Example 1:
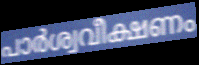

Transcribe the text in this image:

പാർശ്വവീക്ഷണം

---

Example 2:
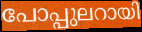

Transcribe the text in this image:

പോപ്പുലറായി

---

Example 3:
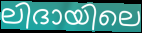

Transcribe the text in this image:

ലിദായിലെ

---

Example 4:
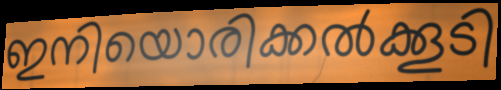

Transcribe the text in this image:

ഇനിയൊരിക്കൽക്കൂടി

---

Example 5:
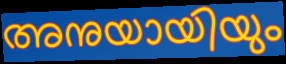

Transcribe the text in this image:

അനുയായിയും